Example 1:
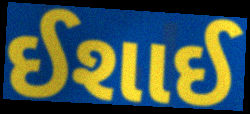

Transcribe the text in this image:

ઈશાઈ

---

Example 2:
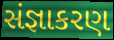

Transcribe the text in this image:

સંજ્ઞાકરણ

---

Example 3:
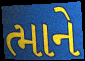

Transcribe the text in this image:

ત્માને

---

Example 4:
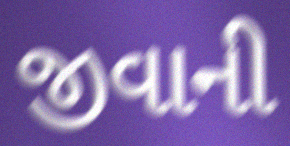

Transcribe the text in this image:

જીવાની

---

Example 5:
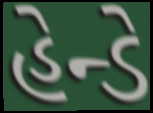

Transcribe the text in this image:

હેન્ડે